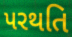
પરથતિ